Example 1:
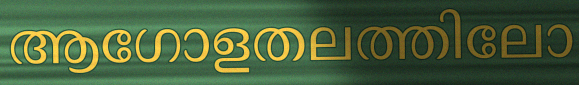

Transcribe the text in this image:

ആഗോളതലത്തിലോ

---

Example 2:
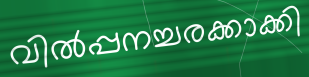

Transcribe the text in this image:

വിൽപ്പനച്ചരക്കാക്കി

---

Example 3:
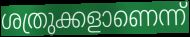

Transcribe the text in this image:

ശത്രുക്കളാണെന്ന്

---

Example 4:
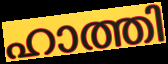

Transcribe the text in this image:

ഹാത്തി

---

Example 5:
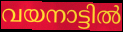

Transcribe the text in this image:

വയനാട്ടിൽ